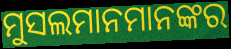
ମୁସଲମାନମାନଙ୍କର